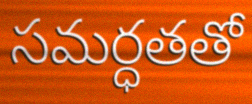
సమర్ధతతో